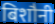
बिशौनी